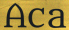
Aca